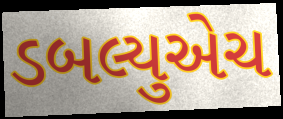
ડબલ્યુએચ